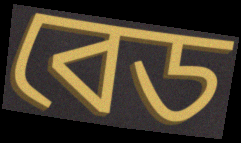
বেড